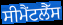
ਸੀਮੈਂਟਲੈੱਸ